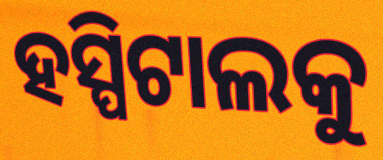
ହସ୍ପିଟାଲକୁ